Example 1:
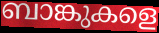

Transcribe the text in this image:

ബാങ്കുകളെ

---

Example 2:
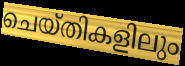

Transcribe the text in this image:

ചെയ്തികളിലും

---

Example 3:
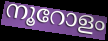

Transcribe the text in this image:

നൂറോളം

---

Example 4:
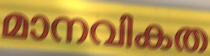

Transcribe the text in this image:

മാനവികത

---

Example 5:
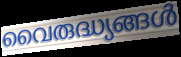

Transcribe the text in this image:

വൈരുദ്ധ്യങ്ങൾ